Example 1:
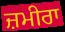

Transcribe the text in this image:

ਜ਼ਮੀਰਾ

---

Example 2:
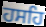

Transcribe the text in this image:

ਹਸਹਿ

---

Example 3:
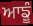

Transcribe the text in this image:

ਆਙੂੰ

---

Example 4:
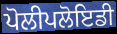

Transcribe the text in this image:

ਪੋਲੀਪਲੋਇਡੀ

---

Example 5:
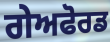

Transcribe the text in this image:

ਗੇਅਫੋਰਡ